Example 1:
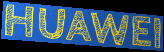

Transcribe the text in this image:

HUAWEI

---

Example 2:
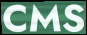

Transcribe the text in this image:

CMS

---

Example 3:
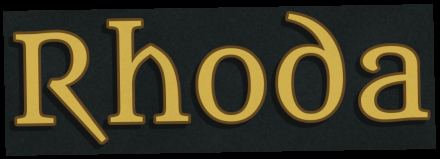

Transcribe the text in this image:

Rhoda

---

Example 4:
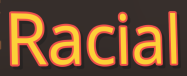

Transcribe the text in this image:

Racial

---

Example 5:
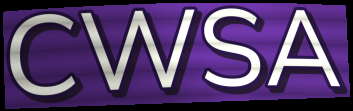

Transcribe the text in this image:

CWSA